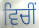
ਵਿਚੀਂ